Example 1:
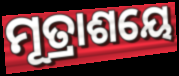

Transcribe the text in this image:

ମୂତ୍ରାଶୟେ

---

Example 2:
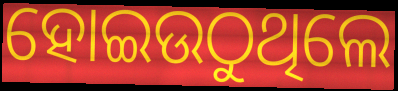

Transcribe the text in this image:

ହୋଇଉଠୁଥିଲେ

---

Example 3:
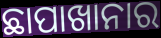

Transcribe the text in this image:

ଛାପାଖାନାର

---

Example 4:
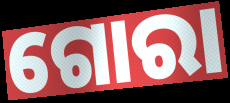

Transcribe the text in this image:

ଗୋରା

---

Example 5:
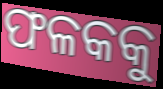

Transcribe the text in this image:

ଫଳକକୁ